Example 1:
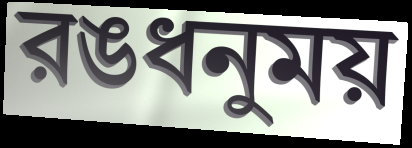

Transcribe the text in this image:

রঙধনুময়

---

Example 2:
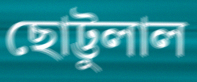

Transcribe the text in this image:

ছোট্টুলাল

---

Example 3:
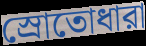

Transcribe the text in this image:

স্রোতোধারা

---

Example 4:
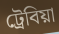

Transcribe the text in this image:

ট্রেবিয়া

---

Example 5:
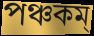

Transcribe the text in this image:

পঞ্চকম্